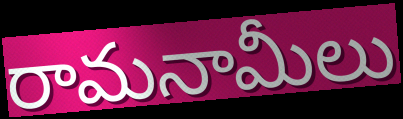
రామనామీలు